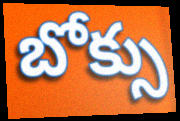
బోక్సు